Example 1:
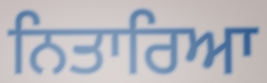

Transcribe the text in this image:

ਨਿਤਾਰਿਆ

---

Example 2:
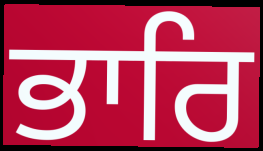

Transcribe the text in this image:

ਭਾਰਿ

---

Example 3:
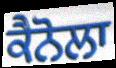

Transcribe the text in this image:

ਕੈਨੋਲਾ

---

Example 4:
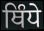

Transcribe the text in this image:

ਥਿੰਧੇ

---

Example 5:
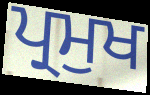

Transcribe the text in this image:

ਪ੍ਰਮੁਖ